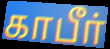
காபீர்